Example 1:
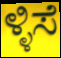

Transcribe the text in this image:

ಳ್ಳಿಸೆ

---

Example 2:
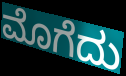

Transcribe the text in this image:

ಮೊಗೆದು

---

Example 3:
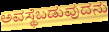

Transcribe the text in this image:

ಅವಸ್ಥೆಬಡುವುದನು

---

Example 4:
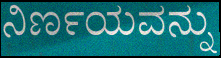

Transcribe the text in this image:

ನಿರ್ಣಯವನ್ನು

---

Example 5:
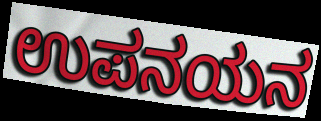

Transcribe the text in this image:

ಉಪನಯನ